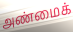
அண்மைக்